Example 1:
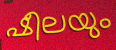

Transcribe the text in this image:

ഷീലയും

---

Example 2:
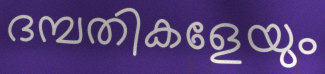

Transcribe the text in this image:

ദമ്പതികളേയും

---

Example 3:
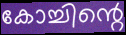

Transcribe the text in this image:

കോച്ചിന്റെ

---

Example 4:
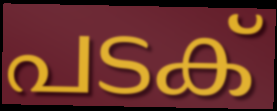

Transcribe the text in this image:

പടക്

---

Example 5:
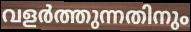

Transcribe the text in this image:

വളർത്തുന്നതിനും